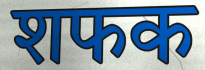
शफक